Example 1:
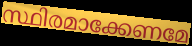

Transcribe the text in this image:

സ്ഥിരമാക്കേണമേ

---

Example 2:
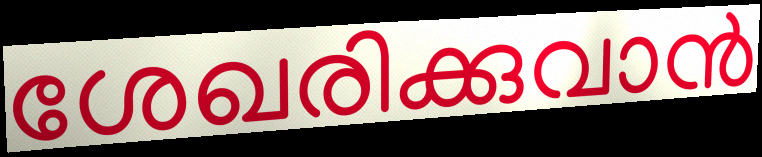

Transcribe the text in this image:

ശേഖരിക്കുവാൻ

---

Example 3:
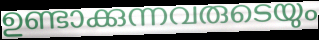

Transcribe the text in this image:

ഉണ്ടാക്കുന്നവരുടെയും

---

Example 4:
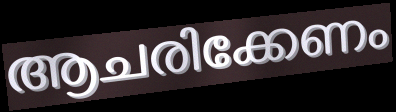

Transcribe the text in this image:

ആചരിക്കേണം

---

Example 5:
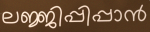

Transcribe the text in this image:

ലജ്ജിപ്പിപ്പാൻ